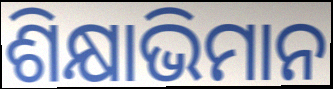
ଶିକ୍ଷାଭିମାନ